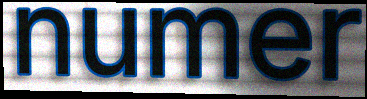
numer